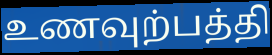
உணவுற்பத்தி